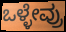
ಒಳ್ಳೇವ್ರು